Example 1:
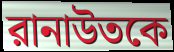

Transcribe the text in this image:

রানাউতকে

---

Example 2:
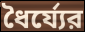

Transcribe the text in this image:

ধৈর্য্যের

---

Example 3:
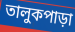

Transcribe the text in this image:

তালুকপাড়া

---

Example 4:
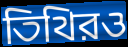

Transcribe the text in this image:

তিথিরও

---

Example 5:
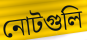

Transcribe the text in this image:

নোটগুলি